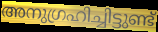
അനുഗ്രഹിച്ചിട്ടുണ്ട്